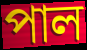
পাল